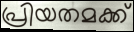
പ്രിയതമക്ക്